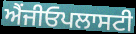
ਐਂਜੀਓਪਲਾਸਟੀ